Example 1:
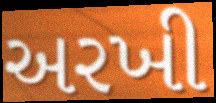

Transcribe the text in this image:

અરખી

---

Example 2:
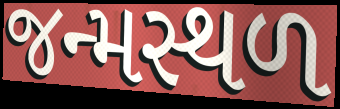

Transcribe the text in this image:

જન્મસ્થળ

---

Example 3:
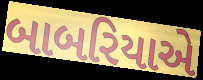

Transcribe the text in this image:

બાબરિયાએ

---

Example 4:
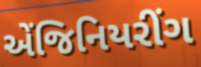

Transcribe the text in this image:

એંજિનિયરીંગ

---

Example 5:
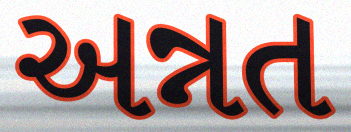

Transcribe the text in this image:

અન્નત